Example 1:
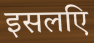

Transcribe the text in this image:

इसलएि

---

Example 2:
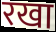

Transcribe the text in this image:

रखा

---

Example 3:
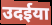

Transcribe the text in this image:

उदईया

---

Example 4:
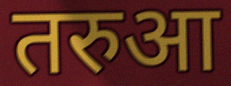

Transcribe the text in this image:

तरुआ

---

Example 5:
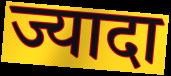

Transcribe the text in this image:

ज्‍यादा